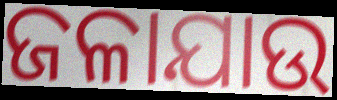
ଜଳାଯାଉ